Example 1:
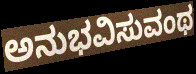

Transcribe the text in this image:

ಅನುಭವಿಸುವಂಥ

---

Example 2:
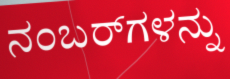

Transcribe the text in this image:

ನಂಬರ್‌ಗಳನ್ನು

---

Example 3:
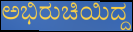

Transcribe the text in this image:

ಅಭಿರುಚಿಯಿದ್ದ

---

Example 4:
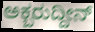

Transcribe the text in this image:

ಅಕ್ಬರುದ್ದೀನ್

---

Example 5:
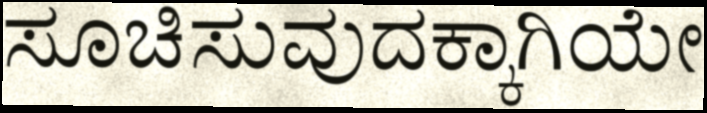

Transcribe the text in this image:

ಸೂಚಿಸುವುದಕ್ಕಾಗಿಯೇ